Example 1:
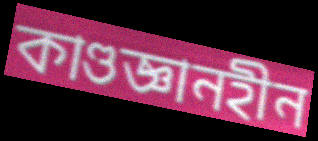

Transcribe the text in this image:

কাণ্ডজ্ঞানহীন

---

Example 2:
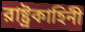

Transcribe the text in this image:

রাষ্ট্রকাহিনী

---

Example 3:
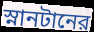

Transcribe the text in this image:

স্নানটানের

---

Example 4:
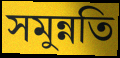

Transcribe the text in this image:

সমুন্নতি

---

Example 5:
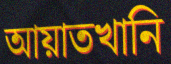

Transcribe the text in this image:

আয়াতখানি